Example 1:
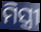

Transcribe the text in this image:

ମିସ୍ତ୍ରୀ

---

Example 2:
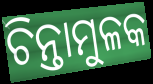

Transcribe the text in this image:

ଚିନ୍ତାମୁଳକ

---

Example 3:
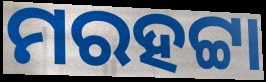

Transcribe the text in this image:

ମରହଟ୍ଟା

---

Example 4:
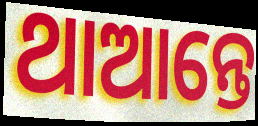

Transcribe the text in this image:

ଥାଆନ୍ତେ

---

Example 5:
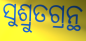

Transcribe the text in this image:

ସୁଶ୍ରୁତଗ୍ରନ୍ଥ